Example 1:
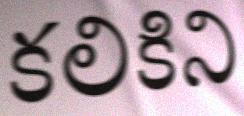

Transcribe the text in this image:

కలికిని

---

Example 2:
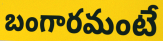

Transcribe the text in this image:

బంగారమంటే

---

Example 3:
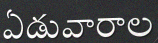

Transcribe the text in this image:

ఏడువారాల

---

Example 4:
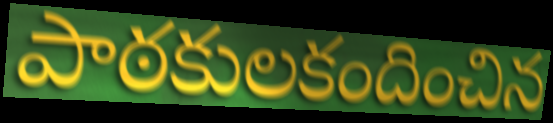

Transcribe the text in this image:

పాఠకులకందించిన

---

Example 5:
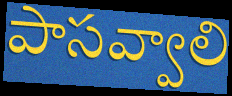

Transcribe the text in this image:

పాసవ్వాలి